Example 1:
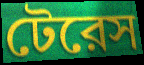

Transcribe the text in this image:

টেরেস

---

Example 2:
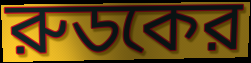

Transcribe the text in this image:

রুডকের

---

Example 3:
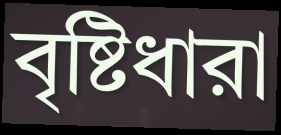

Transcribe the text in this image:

বৃষ্টিধারা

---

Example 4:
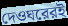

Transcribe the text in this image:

দেওঘরেরই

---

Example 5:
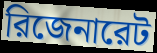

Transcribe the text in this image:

রিজেনারেট